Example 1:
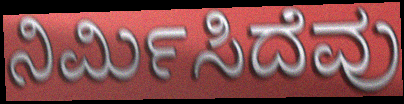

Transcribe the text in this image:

ನಿರ್ಮಿಸಿದೆವು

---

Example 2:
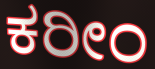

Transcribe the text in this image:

ಕರೀಂ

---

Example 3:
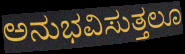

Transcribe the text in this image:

ಅನುಭವಿಸುತ್ತಲೂ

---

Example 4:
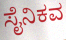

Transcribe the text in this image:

ಸೈನಿಕವ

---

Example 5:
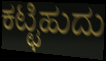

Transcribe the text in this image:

ಕಟ್ಟಿಹುದು